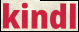
kindl